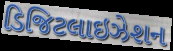
ડિજિટલાઇઝેશન